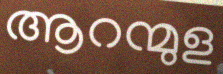
ആറന്മുള